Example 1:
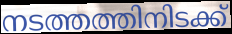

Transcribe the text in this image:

നടത്തത്തിനിടക്ക്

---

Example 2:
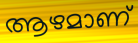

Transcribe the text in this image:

ആഴമാണ്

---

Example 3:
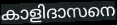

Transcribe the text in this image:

കാളിദാസനെ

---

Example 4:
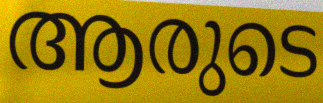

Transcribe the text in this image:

ആരുടെ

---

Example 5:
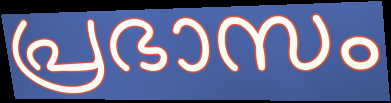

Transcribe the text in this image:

പ്രഭാസം